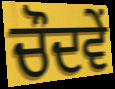
ਚੌਦਵੇਂ